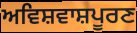
ਅਵਿਸ਼ਵਾਸ਼ਪੂਰਣ